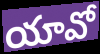
యావో